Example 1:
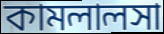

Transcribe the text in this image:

কামলালসা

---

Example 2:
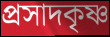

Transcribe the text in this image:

প্রসাদকৃষ্ণ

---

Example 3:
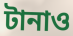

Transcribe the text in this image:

টানাও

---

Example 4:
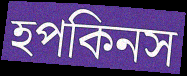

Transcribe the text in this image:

হপকিনস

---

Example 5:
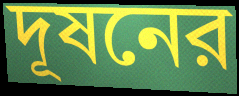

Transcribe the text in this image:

দূষনের